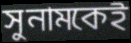
সুনামকেই